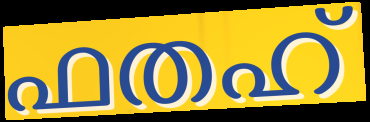
ഫതഹ്